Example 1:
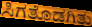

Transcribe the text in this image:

ಸಿಗತೊಡಗಿತು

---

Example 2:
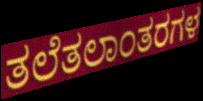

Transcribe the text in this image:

ತಲೆತಲಾಂತರಗಳ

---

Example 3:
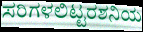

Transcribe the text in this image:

ಸರಿಗಳಲಿಟ್ಟರಶನಿಯ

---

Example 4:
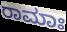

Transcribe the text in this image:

ರಾಮಾಃ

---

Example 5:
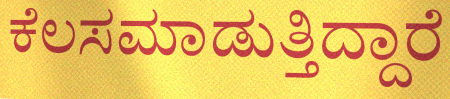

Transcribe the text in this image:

ಕೆಲಸಮಾಡುತ್ತಿದ್ದಾರೆ